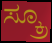
ಸ್ಕ್ರೂ